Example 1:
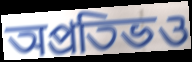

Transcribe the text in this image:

অপ্রতিভও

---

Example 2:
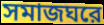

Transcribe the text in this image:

সমাজঘরে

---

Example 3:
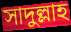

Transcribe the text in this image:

সাদুল্লাহ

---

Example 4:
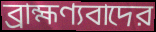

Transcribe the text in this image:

ব্রাহ্মণ্যবাদের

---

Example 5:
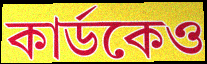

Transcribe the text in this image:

কার্ডকেও